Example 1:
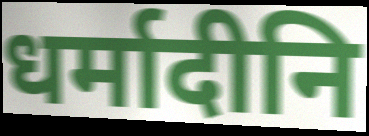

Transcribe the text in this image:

धर्मादीनि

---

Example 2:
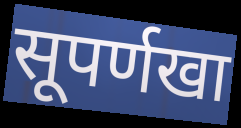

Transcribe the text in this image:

सूपर्णखा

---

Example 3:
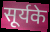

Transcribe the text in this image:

सूर्यके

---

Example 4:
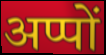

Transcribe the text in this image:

अप्पों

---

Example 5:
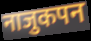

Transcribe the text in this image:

नाजुकपन